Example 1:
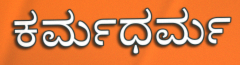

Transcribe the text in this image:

ಕರ್ಮಧರ್ಮ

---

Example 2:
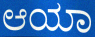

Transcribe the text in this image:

ಆಯಾ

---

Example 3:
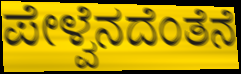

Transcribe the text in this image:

ಪೇಳ್ವೆನದೆಂತೆನೆ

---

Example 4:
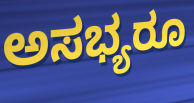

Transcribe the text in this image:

ಅಸಭ್ಯರೂ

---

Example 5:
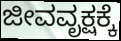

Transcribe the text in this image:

ಜೀವವೃಕ್ಷಕ್ಕೆ